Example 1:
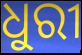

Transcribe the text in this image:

ଧୁରୀ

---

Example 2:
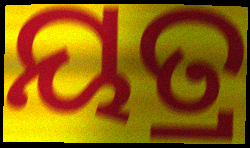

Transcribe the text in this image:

ୟତ୍ର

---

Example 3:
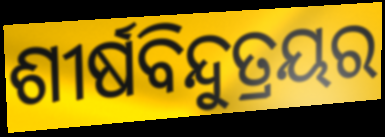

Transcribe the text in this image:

ଶୀର୍ଷବିନ୍ଦୁତ୍ରୟର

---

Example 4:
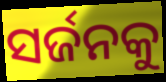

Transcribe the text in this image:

ସର୍ଜନକୁ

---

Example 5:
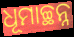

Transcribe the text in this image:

ଧୂମାଚ୍ଛନ୍ନ